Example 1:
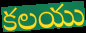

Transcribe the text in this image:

కలయు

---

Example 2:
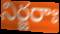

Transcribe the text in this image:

నిర్జరాః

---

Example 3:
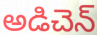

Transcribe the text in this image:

అడిచెన్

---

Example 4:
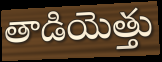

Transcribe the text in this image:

తాడియెత్తు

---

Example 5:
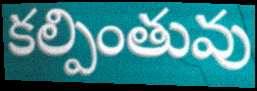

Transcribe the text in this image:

కల్పింతువు